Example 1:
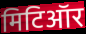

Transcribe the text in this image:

मिटिऑर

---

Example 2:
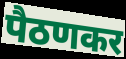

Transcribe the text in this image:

पैठणकर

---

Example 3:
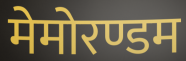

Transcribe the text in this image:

मेमोरण्डम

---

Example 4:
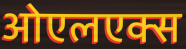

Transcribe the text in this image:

ओएलएक्स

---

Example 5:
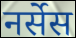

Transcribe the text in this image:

नर्सेस